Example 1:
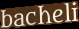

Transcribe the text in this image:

bacheli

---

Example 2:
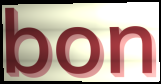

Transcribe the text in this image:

bon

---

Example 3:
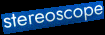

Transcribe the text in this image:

stereoscope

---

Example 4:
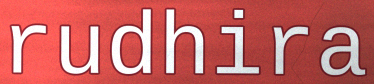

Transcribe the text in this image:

rudhira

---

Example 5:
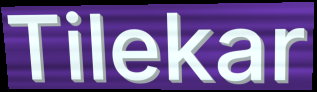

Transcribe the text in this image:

Tilekar